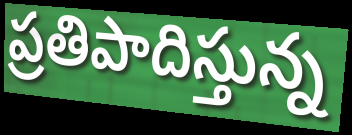
ప్రతిపాదిస్తున్న